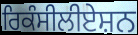
ਰਿਕੰਸੀਲੀਏਸ਼ਨ